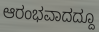
ಆರಂಭವಾದದ್ದೂ